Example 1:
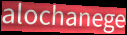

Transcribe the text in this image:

alochanege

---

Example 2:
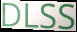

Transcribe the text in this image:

DLSS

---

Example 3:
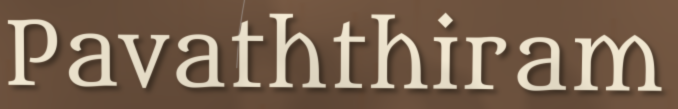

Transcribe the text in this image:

Pavaththiram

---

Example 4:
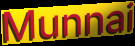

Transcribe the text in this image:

Munnai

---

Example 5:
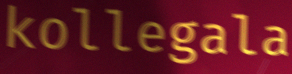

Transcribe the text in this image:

kollegala